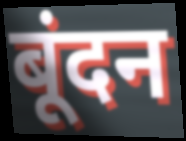
बूंदन